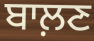
ਬਾਲ਼ਣ